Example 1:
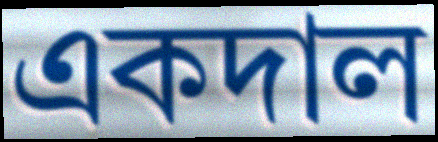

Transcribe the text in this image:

একদাল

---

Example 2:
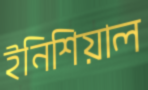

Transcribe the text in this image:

ইনিশিয়াল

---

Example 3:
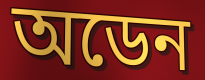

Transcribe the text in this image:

অডেন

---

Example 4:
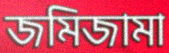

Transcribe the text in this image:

জমিজামা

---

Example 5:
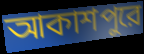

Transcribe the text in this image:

আকাশপুরে